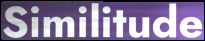
Similitude